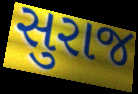
સુરાજ